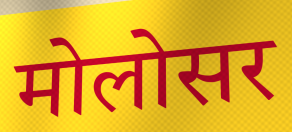
मोलोसर